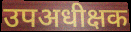
उपअधीक्षक